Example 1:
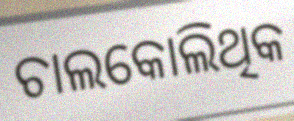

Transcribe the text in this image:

ଚାଲକୋଲିଥିକ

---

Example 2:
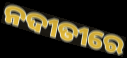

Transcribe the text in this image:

ନଦୀତୀରେ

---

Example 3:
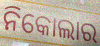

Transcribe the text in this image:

ନିକୋଲାର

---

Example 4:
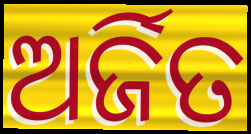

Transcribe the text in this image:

ଅର୍ଜିତ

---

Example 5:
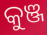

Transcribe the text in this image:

କୁଞ୍ଜ